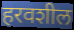
हरवशील